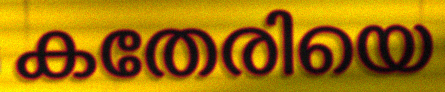
കതേരിയെ